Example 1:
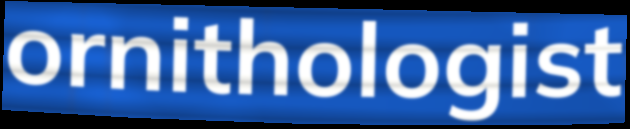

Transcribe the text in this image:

ornithologist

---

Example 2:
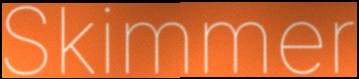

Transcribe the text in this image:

Skimmer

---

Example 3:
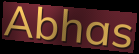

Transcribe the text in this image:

Abhas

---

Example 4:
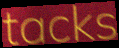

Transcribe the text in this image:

tacks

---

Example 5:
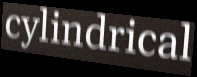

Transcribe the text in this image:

cylindrical